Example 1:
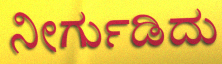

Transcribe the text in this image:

ನೀರ್ಗುಡಿದು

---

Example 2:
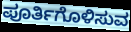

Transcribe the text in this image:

ಪೂರ್ತಿಗೊಳಿಸುವ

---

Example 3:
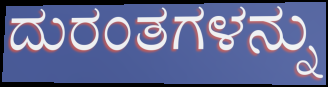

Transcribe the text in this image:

ದುರಂತಗಳನ್ನು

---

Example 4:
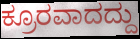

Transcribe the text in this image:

ಕ್ರೂರವಾದದ್ದು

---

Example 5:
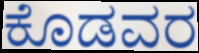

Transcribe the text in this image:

ಕೊಡವರ